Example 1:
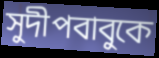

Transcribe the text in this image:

সুদীপবাবুকে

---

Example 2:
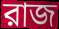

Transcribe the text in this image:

রাজ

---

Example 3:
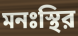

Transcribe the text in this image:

মনঃস্থির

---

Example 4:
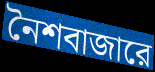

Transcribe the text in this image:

নৈশবাজারে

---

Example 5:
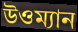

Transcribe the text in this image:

উওম্যান